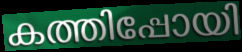
കത്തിപ്പോയി